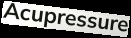
Acupressure